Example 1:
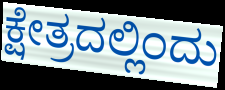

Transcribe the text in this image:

ಕ್ಷೇತ್ರದಲ್ಲಿಂದು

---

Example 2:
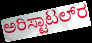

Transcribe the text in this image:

ಅರಿಸ್ಟಾಟಲ್‍ರ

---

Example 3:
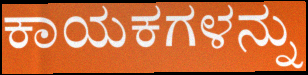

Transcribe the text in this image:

ಕಾಯಕಗಳನ್ನು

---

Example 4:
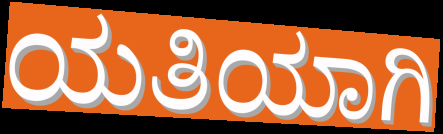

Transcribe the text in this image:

ಯತಿಯಾಗಿ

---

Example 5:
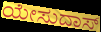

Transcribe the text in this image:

ಯೇಸುದಾಸ್